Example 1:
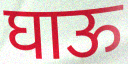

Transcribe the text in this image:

घाऊ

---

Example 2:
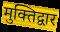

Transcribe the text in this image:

मुक्तिद्वार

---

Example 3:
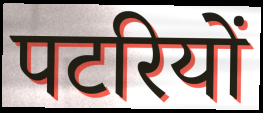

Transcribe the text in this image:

पटरियों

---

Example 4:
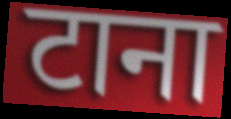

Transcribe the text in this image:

टाना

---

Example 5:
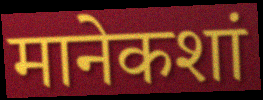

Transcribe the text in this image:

मानेकशां